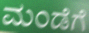
ಮಂಡೆಗೆ